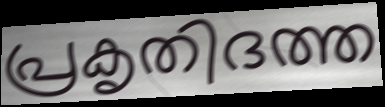
പ്രകൃതിദത്ത